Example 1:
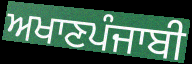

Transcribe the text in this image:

ਅਖਾਣਪੰਜਾਬੀ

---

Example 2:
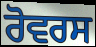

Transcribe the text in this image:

ਰੋਵਰਸ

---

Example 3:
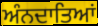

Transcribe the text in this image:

ਅੰਨਦਾਤਿਆਂ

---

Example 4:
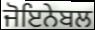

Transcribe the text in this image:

ਜੋਇਨੇਬਲ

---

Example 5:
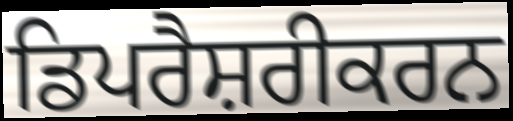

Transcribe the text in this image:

ਡਿਪਰੈਸ਼ਰੀਕਰਨ